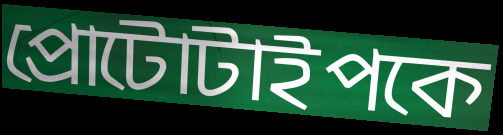
প্রোটোটাইপকে